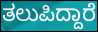
ತಲುಪಿದ್ದಾರೆ